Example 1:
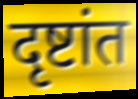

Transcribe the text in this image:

दृष्टांत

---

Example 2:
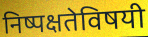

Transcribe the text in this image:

निष्पक्षतेविषयी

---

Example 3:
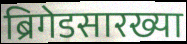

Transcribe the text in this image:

ब्रिगेडसारख्या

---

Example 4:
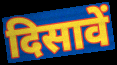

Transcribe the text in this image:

दिसावें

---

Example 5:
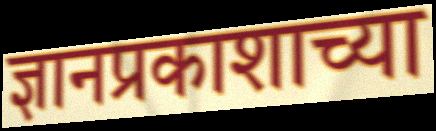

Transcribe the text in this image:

ज्ञानप्रकाशाच्या